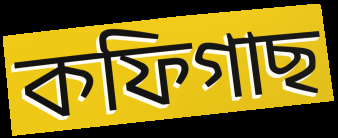
কফিগাছ